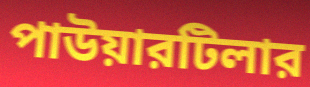
পাউয়ারটিলার